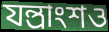
যন্ত্রাংশও